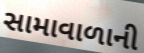
સામાવાળાની